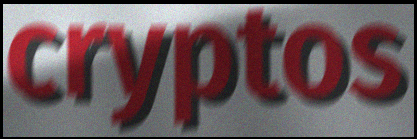
cryptos